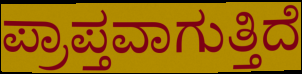
ಪ್ರಾಪ್ತವಾಗುತ್ತಿದೆ